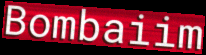
Bombaiim